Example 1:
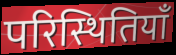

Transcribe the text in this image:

परिस्थितियाँ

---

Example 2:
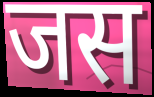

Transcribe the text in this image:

जस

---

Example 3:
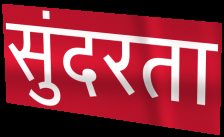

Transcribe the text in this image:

सुंदरता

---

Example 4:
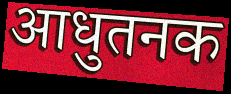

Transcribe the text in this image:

आधुतनक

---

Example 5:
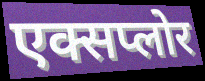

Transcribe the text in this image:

एक्सप्लोर